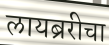
लायब्ररीचा